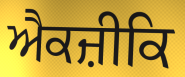
ਐਕਜ਼ੀਕਿ